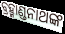
ବ୍ରହ୍ମାଣ୍ଡନାଥଙ୍କ